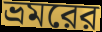
ভ্রমরের